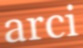
arci